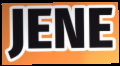
JENE